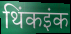
थिंकइंक